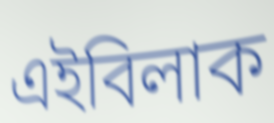
এইবিলাক